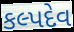
કલ્પદેવ